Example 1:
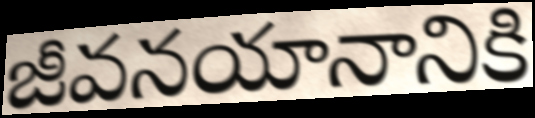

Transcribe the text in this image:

జీవనయానానికి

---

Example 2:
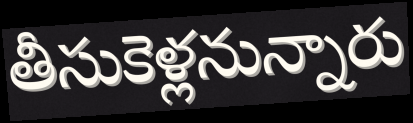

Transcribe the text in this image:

తీసుకెళ్లనున్నారు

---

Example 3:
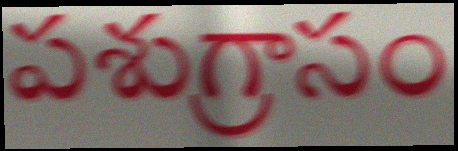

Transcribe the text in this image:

పశుగ్రాసం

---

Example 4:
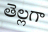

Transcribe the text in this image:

తెల్లగా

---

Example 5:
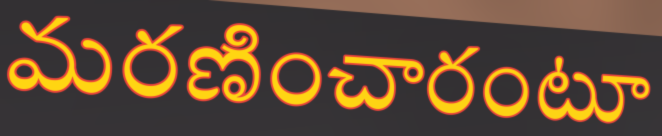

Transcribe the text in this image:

మరణించారంటూ